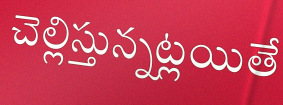
చెల్లిస్తున్నట్లయితే